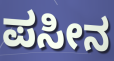
ಪಸೀನ